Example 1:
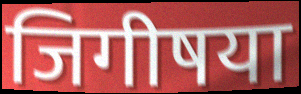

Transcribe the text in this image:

जिगीषया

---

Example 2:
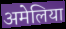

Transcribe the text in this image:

अमेलिया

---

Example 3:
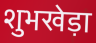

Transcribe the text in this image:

शुभखेड़ा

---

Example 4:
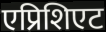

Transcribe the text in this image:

एप्रिशिएट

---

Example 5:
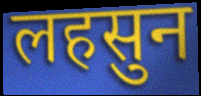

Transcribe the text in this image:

लहसुन